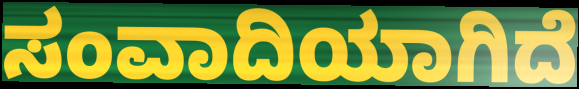
ಸಂವಾದಿಯಾಗಿದೆ